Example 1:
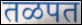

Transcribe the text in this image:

तळपत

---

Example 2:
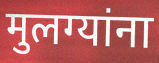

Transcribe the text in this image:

मुलग्यांना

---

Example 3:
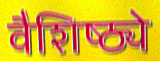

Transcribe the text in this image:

वैशिष्ठ्ये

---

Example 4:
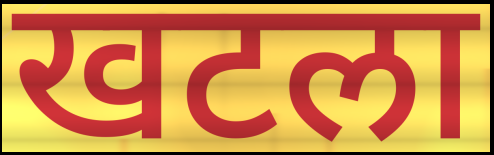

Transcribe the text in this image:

खटला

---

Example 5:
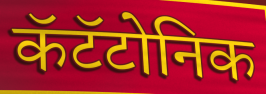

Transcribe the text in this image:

कॅटॅटोनिक